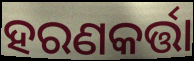
ହରଣକର୍ତ୍ତା